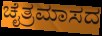
ಚೈತ್ರಮಾಸದ